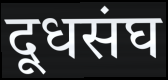
दूधसंघ